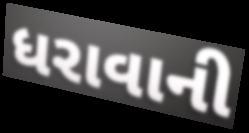
ધરાવાની